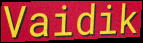
Vaidik